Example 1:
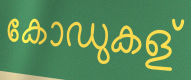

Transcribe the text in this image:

കോഡുകള്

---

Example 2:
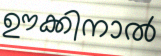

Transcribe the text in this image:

ഊക്കിനാൽ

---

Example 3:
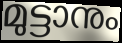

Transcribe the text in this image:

മുട്ടാനും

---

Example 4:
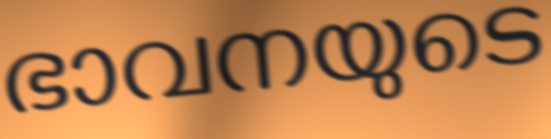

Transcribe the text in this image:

ഭാവനയുടെ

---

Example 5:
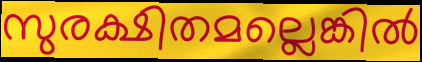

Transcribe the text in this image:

സുരക്ഷിതമല്ലെങ്കിൽ